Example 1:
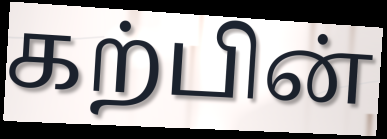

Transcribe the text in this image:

கற்பின்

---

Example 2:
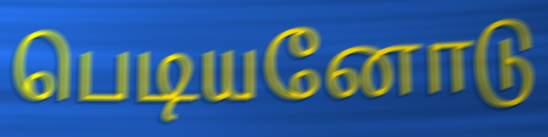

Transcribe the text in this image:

பெடியனோடு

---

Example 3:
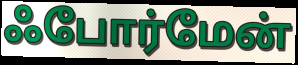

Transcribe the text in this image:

ஃபோர்மேன்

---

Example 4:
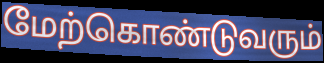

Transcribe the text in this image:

மேற்கொண்டுவரும்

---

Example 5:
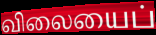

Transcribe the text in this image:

விலையைப்